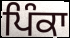
ਪਿੰਕਾ